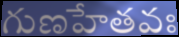
గుణహేతవః